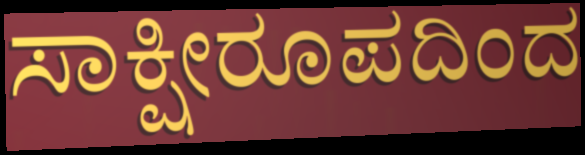
ಸಾಕ್ಷೀರೂಪದಿಂದ